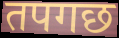
तपगछ